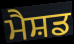
ਮੈਸ਼ਡ